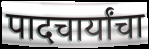
पादचार्यांचा